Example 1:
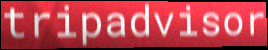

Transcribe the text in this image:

tripadvisor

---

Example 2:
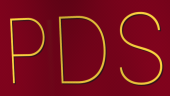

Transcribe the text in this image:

PDS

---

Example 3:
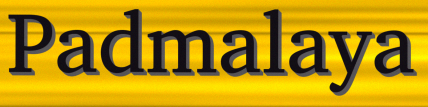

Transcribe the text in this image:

Padmalaya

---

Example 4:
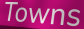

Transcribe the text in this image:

Towns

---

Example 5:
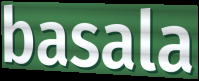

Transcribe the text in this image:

basala